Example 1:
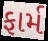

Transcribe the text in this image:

ફાર્મ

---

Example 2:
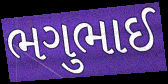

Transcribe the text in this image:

ભગુભાઈ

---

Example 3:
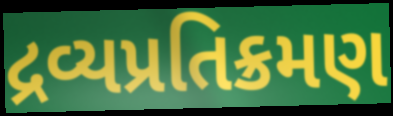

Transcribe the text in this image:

દ્રવ્યપ્રતિક્રમણ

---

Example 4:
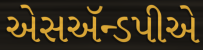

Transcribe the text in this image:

એસઍન્ડપીએ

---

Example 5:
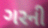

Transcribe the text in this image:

ગરની